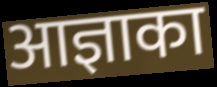
आज्ञाका